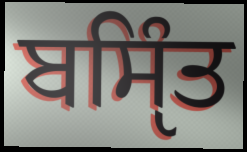
ਬਸੵਿੰਤ